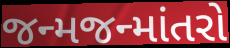
જન્મજન્માંતરો